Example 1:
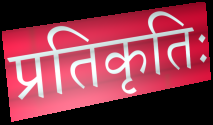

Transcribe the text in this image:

प्रतिकृतिः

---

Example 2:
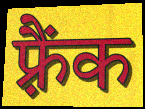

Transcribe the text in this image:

फ़्रैंक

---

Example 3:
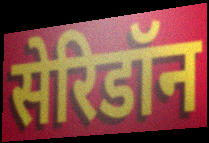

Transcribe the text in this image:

सेरिडॉन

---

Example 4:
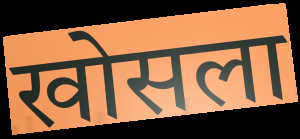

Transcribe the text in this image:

खोसला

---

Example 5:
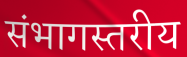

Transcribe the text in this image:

संभागस्तरीय